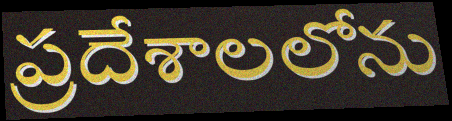
ప్రదేశాలలోను